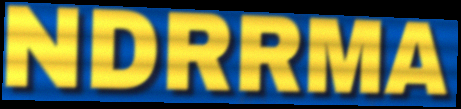
NDRRMA